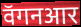
वॅगनआर